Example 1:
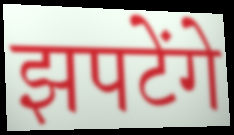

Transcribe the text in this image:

झपटेंगे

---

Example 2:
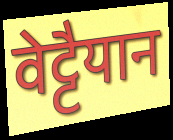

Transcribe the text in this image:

वेट्टैयान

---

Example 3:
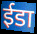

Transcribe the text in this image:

ईडा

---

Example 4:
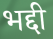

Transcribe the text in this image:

भद्दी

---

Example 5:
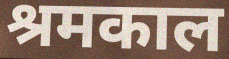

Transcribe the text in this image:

श्रमकाल